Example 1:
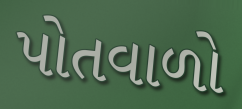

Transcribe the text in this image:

પોતવાળો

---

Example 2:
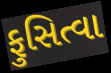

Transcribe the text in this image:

ફુસિત્વા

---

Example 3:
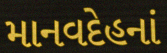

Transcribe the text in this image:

માનવદેહનાં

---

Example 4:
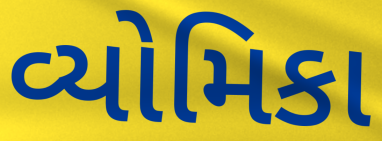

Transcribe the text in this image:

વ્યોમિકા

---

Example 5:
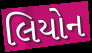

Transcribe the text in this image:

લિયોન